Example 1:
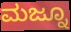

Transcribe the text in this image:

ಮಜ್ನೂ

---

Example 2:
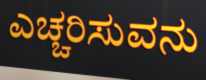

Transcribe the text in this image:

ಎಚ್ಚರಿಸುವನು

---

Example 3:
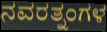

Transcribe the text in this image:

ನವರತ್ನಂಗಳ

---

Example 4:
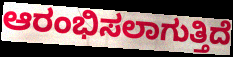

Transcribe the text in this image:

ಆರಂಭಿಸಲಾಗುತ್ತಿದೆ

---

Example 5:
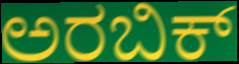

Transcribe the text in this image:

ಅರಬಿಕ್